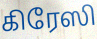
கிரேஸி